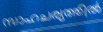
സാഹചര്യത്തിൽ